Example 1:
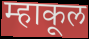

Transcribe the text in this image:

म्हाकूल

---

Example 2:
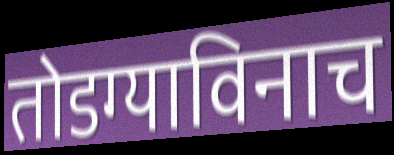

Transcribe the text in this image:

तोडग्याविनाच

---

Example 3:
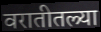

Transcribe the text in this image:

वरातीतल्या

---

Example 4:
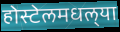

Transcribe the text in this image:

होस्टेलमधल्या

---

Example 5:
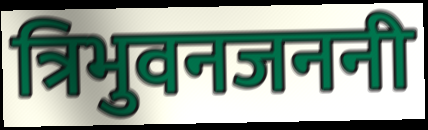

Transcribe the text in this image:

त्रिभुवनजननी